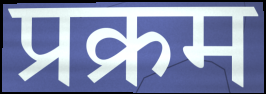
प्रक्रम